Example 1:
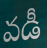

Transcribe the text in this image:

వడీ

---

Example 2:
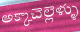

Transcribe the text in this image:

అక్కాచెల్లెళ్ళు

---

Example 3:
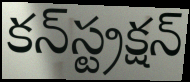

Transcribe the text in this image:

కన్‍స్ట్రక్షన్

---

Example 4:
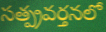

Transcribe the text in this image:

సత్ప్రవర్తనలో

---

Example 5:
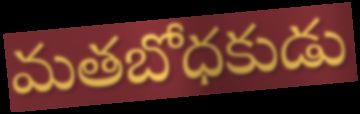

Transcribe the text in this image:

మతబోధకుడు